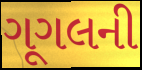
ગૂગલની